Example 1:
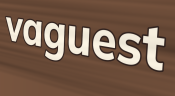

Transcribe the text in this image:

vaguest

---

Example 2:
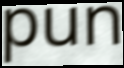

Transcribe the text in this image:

pun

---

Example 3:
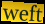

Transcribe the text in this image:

weft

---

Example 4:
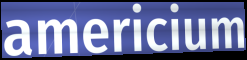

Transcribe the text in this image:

americium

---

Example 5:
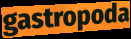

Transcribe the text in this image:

gastropoda